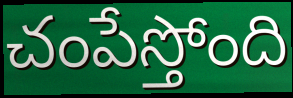
చంపేస్తోంది